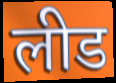
लीड